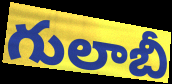
గులాబీ